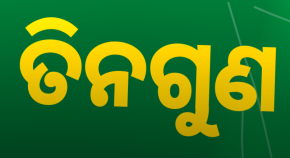
ତିନଗୁଣ